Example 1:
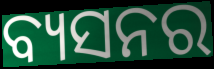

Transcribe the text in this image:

ବ୍ୟସନର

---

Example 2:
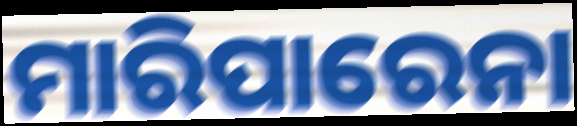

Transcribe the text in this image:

ମାରିପାରେନା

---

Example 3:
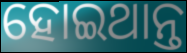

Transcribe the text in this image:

ହୋଇଥାନ୍ତ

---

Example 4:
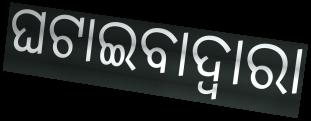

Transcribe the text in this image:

ଘଟାଇବାଦ୍ୱାରା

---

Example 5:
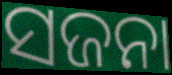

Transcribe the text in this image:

ସଜନା